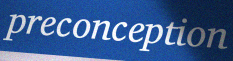
preconception